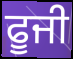
ਫੂਜੀ